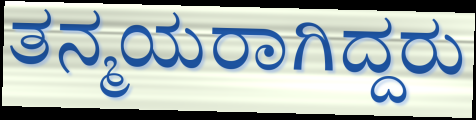
ತನ್ಮಯರಾಗಿದ್ದರು